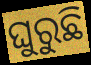
ଘୁରୁଛି